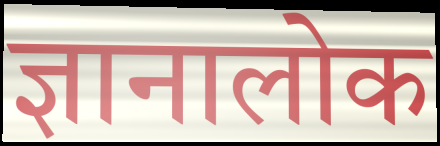
ज्ञानालोक